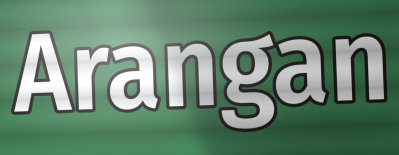
Arangan